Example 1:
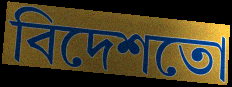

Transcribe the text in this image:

বিদেশতো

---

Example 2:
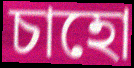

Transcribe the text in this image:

চাহো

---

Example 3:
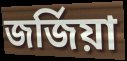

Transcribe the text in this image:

জৰ্জিয়া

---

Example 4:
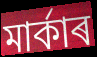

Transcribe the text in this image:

মাৰ্কাৰ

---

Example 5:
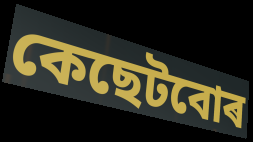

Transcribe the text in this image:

কেছেটবোৰ